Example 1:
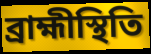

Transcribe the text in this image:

ব্রাহ্মীস্থিতি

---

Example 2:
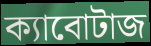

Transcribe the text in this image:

ক্যাবোটাজ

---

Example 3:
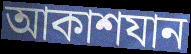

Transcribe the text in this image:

আকাশযান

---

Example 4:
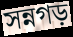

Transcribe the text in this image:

সন্নগড়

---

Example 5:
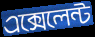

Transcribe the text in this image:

এক্সেলেন্ট